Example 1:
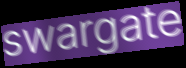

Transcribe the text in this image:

swargate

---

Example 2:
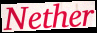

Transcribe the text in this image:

Nether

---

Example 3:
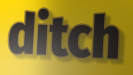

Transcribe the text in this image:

ditch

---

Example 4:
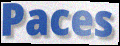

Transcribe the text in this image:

Paces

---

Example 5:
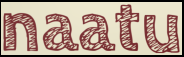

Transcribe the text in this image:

naatu